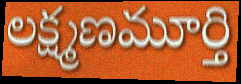
లక్ష్మణమూర్తి